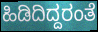
ಹಿಡಿದಿದ್ದರಂತೆ